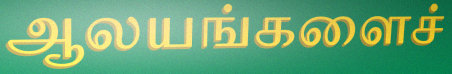
ஆலயங்களைச்